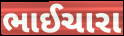
ભાઈચારા